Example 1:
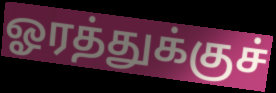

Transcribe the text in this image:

ஓரத்துக்குச்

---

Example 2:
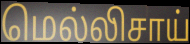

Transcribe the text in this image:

மெல்லிசாய்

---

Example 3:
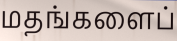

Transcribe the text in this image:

மதங்களைப்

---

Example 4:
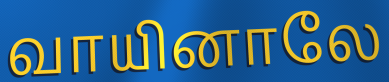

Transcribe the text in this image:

வாயினாலே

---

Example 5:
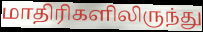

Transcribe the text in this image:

மாதிரிகளிலிருந்து